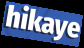
hikaye